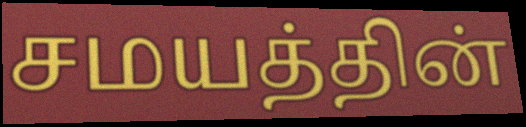
சமயத்தின்